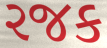
રજક